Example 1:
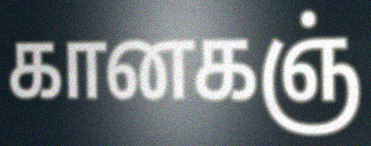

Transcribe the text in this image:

கானகஞ்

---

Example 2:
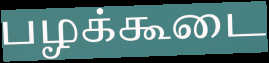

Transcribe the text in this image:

பழக்கூடை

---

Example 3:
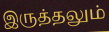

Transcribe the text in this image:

இருத்தலும்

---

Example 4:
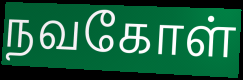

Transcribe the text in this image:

நவகோள்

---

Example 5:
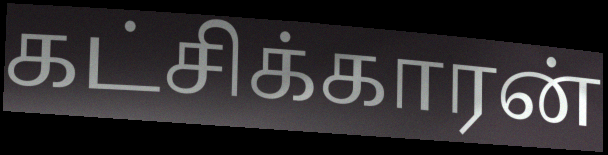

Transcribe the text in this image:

கட்சிக்காரன்